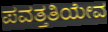
ಪವತ್ತತಿಯೇವ